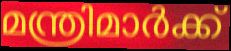
മന്ത്രിമാർക്ക്